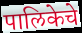
पालिकेचे